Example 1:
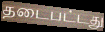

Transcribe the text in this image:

தடைபட்டது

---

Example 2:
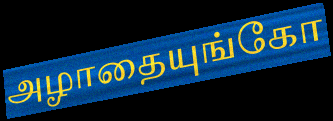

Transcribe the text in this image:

அழாதையுங்கோ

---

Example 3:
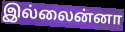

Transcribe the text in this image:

இல்லைன்னா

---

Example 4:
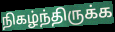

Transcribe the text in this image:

நிகழ்ந்திருக்க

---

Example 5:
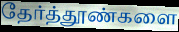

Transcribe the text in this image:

தேர்த்தூண்களை